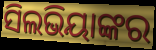
ସିଲଭିୟାଙ୍କର